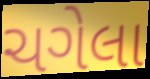
ચગેલા